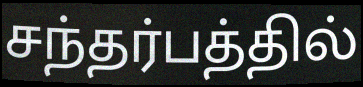
சந்தர்பத்தில்